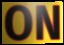
ON